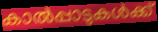
കാൽപ്പാടുകൾക്ക്